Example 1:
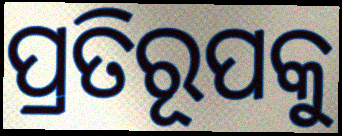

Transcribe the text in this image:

ପ୍ରତିରୂପକୁ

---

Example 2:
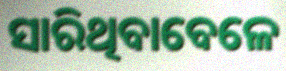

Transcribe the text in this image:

ସାରିଥିବାବେଳେ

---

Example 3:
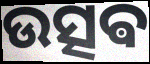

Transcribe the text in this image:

ଉତ୍ସଵ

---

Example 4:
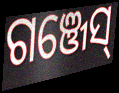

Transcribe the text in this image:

ଗଞ୍ଜେସ୍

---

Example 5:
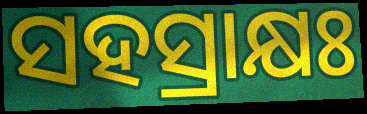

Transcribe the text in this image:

ସହସ୍ରାକ୍ଷଃ